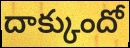
దాక్కుందో